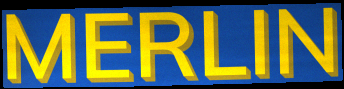
MERLIN